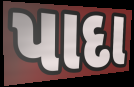
પાદા